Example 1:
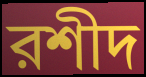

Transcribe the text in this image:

রশীদ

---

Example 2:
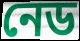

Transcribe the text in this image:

নেড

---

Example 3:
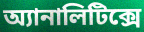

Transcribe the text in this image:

অ্যানালিটিক্সে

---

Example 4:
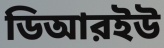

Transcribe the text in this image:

ডিআরইউ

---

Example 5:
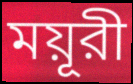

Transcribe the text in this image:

ময়ূরী